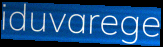
iduvarege